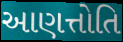
આણત્તોતિ